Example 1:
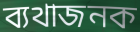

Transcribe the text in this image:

ব্যথাজনক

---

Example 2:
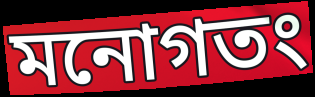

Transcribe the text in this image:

মনোগতং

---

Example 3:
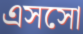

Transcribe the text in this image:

এসসো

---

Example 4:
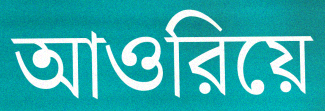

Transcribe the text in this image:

আওরিয়ে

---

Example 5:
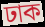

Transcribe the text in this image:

ঢাক